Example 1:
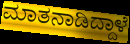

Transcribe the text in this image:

ಮಾತನಾಡಿದ್ದಾಳೆ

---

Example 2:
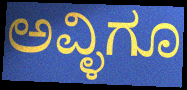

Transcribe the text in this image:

ಅವ್ಳಿಗೂ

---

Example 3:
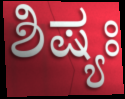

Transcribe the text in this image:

ಶಿಷ್ಯಃ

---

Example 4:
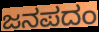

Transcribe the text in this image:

ಜನಪದಂ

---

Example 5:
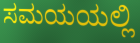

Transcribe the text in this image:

ಸಮಯಯಲ್ಲಿ